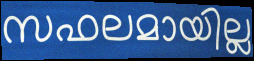
സഫലമായില്ല